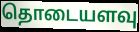
தொடையளவு